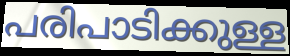
പരിപാടിക്കുള്ള